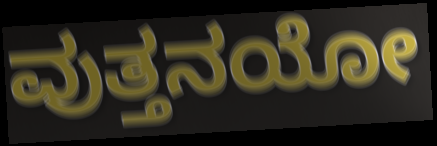
ವುತ್ತನಯೋ